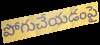
పోగుచేయడంపై